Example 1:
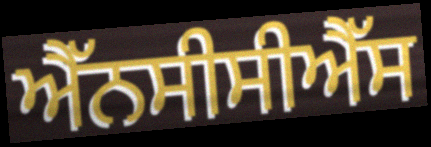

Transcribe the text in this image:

ਐੱਨਸੀਸੀਐੱਸ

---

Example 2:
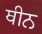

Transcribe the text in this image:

ਥੀਨ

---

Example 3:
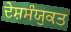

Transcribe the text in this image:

ਦੇਸ਼ਸੰਯੁਕਤ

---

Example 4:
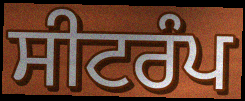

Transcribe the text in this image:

ਸੀਟਰੰਪ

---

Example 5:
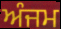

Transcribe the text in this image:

ਅੰਜਮ